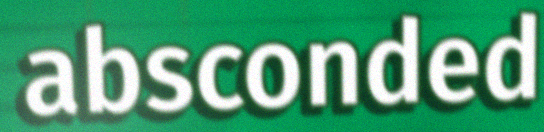
absconded